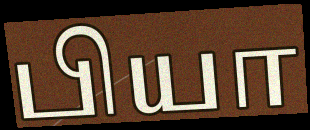
பியா